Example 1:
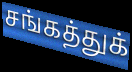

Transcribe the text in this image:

சங்கத்துக்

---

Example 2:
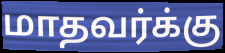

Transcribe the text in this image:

மாதவர்க்கு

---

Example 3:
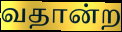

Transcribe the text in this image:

வதான்ற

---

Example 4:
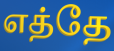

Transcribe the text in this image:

எத்தே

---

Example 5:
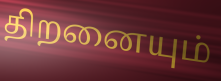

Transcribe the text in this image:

திறனையும்